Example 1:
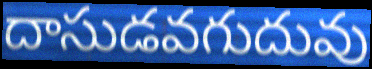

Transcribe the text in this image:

దాసుడవగుదువు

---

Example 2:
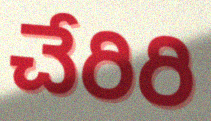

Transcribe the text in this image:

చేరిరి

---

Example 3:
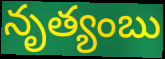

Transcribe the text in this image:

నృత్యంబు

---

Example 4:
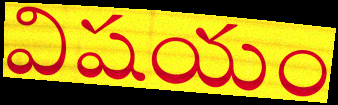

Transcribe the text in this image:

విషయం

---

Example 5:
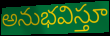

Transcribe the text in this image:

అనుభవిస్తూ